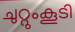
ചുറ്റുംകൂടി